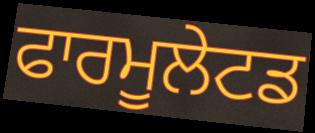
ਫਾਰਮੂਲੇਟਡ